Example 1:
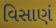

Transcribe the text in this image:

વિસાણં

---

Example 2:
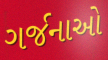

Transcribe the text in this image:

ગર્જનાઓ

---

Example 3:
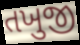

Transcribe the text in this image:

તખુજી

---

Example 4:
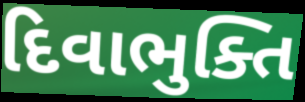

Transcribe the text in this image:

દિવાભુક્તિ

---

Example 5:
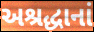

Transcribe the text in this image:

અશ્રદ્ધાનાં